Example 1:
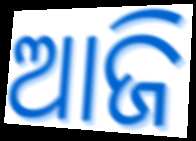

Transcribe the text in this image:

ଆଜି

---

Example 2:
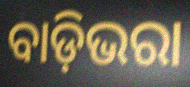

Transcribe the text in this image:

ବାଡ଼ିଭରା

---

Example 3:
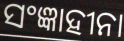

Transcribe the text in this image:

ସଂଜ୍ଞାହୀନା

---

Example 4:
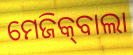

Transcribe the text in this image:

ମେଜିକ୍‍ବାଲା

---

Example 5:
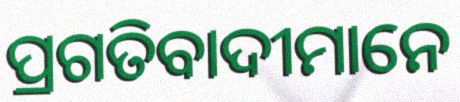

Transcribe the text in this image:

ପ୍ରଗତିବାଦୀମାନେ